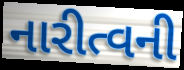
નારીત્વની